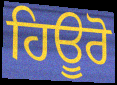
ਹਿਊਰੋ